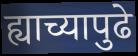
ह्याच्यापुढे